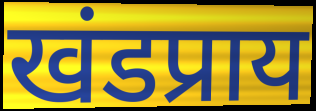
खंडप्राय